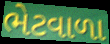
ભેટવાળા